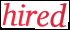
hired